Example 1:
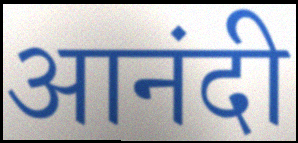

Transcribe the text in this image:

आनंदी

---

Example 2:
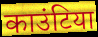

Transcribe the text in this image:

काउंटिया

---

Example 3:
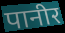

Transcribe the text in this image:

पानीर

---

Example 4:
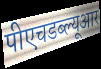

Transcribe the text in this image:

पीएचडब्ल्यूआर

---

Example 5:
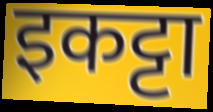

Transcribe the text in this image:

इकट्टा